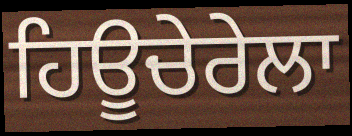
ਹਿਊਚੇਰੇਲਾ